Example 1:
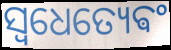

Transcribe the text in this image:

ସ୍ଵଧେତ୍ଯେଵଂ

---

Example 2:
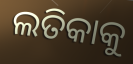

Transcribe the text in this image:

ଲତିକାକୁ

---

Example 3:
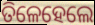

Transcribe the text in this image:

ତିଳେହେଲେ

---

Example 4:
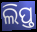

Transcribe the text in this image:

ଲିପ୍ତ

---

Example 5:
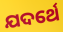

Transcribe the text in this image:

ଯଦର୍ଥେ